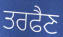
ਤਰਫੈਣ